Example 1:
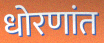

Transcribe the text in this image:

धोरणांत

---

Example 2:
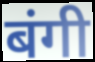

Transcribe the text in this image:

बंगी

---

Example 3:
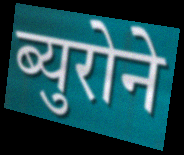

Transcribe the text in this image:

ब्युरोने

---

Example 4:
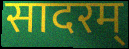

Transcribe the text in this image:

सादरम्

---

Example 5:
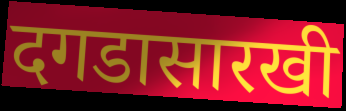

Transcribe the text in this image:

दगडासारखी